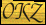
OKZ